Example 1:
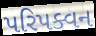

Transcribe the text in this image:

પરિપક્વન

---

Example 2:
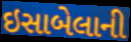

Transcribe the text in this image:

ઇસાબેલાની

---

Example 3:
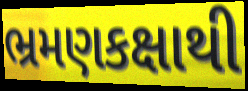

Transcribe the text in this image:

ભ્રમણકક્ષાથી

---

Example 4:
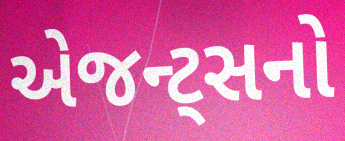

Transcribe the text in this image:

એજન્ટ્સનો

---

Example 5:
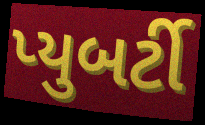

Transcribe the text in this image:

પ્યુબર્ટી